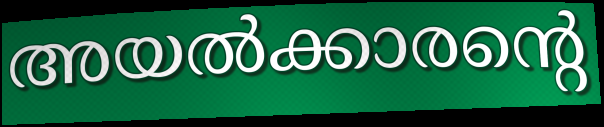
അയൽക്കാരന്റെ